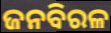
ଜନବିରଳ